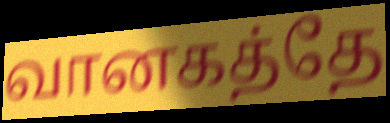
வானகத்தே